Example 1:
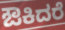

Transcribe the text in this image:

ಔಕಿದರೆ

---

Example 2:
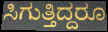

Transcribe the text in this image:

ಸಿಗುತ್ತಿದ್ದರೂ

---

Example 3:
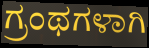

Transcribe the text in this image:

ಗ್ರಂಥಗಳಾಗಿ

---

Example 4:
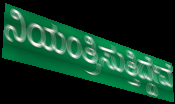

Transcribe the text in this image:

ನಿಯಂತ್ರಿಸುತ್ತಿದ್ದೇವೆ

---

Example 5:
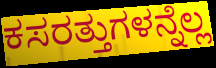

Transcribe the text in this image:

ಕಸರತ್ತುಗಳನ್ನೆಲ್ಲ